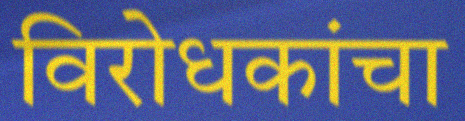
विरोधकांचा